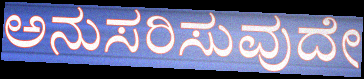
ಅನುಸರಿಸುವುದೇ